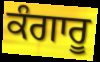
ਕੰਗਾਰੂ